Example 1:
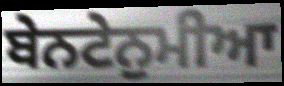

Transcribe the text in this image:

ਬੇਨਟੇਨੁਮੀਆ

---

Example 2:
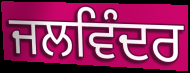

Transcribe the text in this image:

ਜਲਵਿੰਦਰ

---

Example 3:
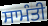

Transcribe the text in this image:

ਸਾਮੰਤੀ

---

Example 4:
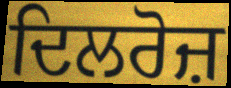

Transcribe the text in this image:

ਦਿਲਰੋਜ਼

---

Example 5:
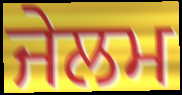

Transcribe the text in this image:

ਜੇਲਮ